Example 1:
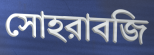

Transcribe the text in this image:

সোহরাবজি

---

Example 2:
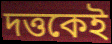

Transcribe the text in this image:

দত্তকেই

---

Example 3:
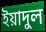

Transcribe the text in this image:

ইয়াদুল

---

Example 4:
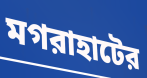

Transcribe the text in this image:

মগরাহাটের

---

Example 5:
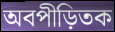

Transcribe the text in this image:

অবপীড়িতক